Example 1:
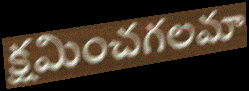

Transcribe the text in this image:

క్షమించగలమా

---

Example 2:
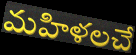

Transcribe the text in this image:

మహిళలచే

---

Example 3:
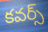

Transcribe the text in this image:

కవర్స్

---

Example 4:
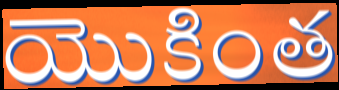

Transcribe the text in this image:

యొకింత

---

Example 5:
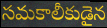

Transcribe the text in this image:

సమకాలీకుడైన